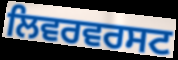
ਲਿਵਰਵਰਸਟ